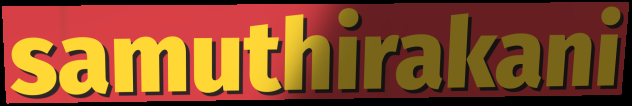
samuthirakani